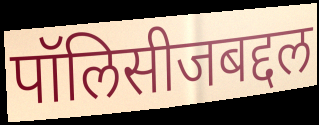
पॉलिसीजबद्दल